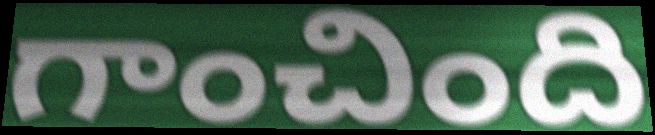
గాంచింది